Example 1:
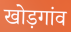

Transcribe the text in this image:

खोड़गांव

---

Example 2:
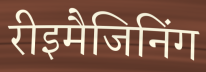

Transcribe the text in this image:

रीइमैजिनिंग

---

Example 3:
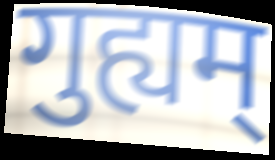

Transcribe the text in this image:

गुह्यम्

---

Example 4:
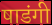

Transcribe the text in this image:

षाडंगी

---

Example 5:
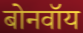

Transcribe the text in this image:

बोनवॉय